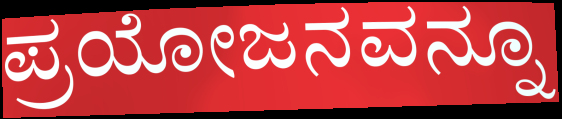
ಪ್ರಯೋಜನವನ್ನೂ